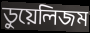
ডুয়েলিজম